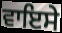
ਵਾਇਸੇ